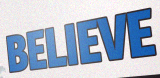
BELIEVE